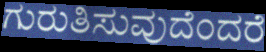
ಗುರುತಿಸುವುದೆಂದರೆ